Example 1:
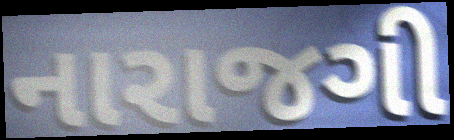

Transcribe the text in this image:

નારાજગી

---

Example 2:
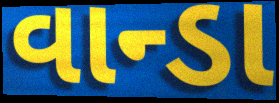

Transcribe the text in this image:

વાન્ડા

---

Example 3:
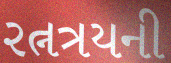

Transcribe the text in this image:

રત્નત્રયની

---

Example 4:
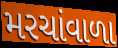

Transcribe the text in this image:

મરચાંવાળા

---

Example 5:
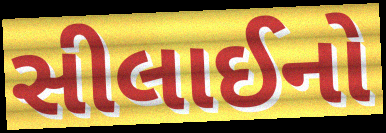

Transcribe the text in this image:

સીલાઈનો